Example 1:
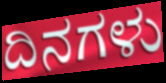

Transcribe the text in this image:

ದಿನಗಳು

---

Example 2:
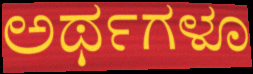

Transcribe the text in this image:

ಅರ್ಥಗಳೂ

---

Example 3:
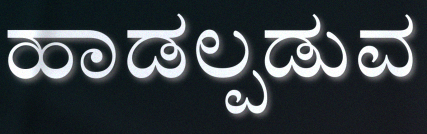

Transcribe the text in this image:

ಹಾಡಲ್ಪಡುವ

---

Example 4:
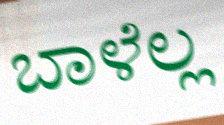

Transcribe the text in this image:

ಬಾಳೆಲ್ಲ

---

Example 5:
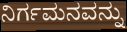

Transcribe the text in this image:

ನಿರ್ಗಮನವನ್ನು